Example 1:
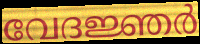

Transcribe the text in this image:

വേദജ്ഞർ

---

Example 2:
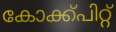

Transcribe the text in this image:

കോക്ക്പിറ്റ്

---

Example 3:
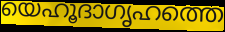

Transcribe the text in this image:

യെഹൂദാഗൃഹത്തെ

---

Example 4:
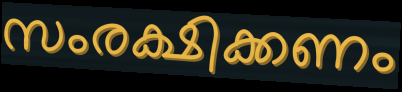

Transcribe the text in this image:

സംരക്ഷിക്കണം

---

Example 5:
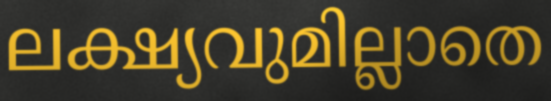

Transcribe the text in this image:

ലക്ഷ്യവുമില്ലാതെ